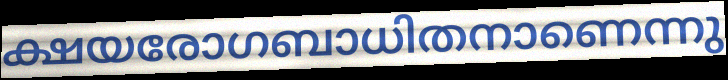
ക്ഷയരോഗബാധിതനാണെന്നു